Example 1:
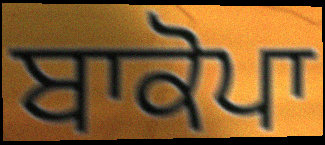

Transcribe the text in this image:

ਬਾਕੋਪਾ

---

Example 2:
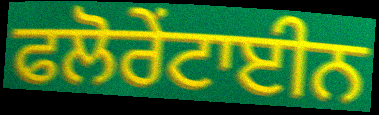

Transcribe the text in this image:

ਫਲੋਰੇਂਟਾਈਨ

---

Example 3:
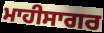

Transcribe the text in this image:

ਮਾਹੀਸਾਗਰ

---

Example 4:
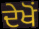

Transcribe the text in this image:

ਦੇਖੋਂ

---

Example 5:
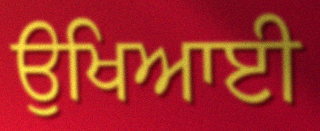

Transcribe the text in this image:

ਉਖਿਆਈ